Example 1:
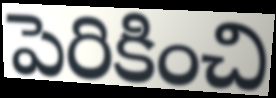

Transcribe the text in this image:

పెరికించి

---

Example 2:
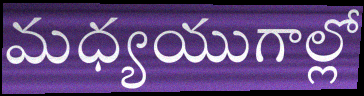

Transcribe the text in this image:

మధ్యయుగాల్లో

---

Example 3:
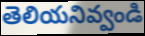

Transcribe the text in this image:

తెలియనివ్వండి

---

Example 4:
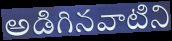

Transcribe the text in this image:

అడిగినవాటిని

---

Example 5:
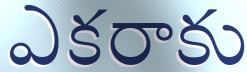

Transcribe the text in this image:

ఎకరాకు